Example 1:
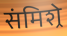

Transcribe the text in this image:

संमिश्रे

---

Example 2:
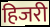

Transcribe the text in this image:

हिजरी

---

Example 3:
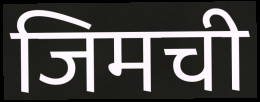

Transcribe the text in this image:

जिमची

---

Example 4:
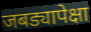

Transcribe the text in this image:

जबड्यापेक्षा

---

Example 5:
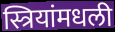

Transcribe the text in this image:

स्त्रियांमधली